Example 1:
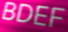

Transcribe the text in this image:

BDEF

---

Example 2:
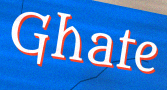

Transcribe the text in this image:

Ghate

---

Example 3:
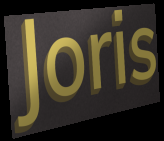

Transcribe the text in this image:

Joris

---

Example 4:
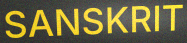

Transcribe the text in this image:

SANSKRIT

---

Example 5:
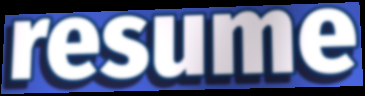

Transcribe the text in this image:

resume